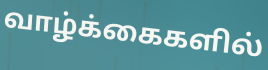
வாழ்க்கைகளில்